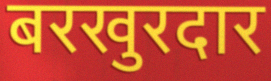
बरखुरदार